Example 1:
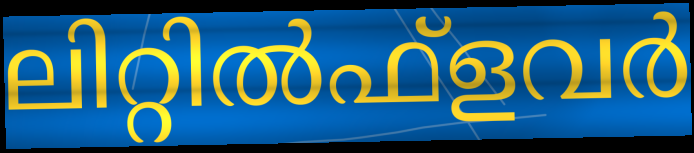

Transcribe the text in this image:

ലിറ്റിൽഫ്ളവർ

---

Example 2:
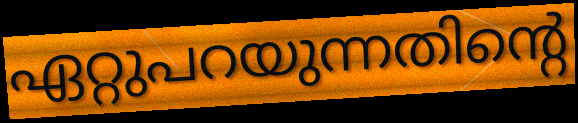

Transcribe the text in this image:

ഏറ്റുപറയുന്നതിന്റെ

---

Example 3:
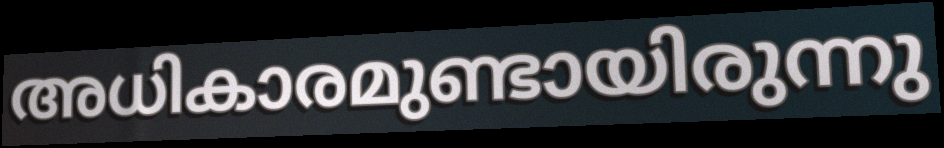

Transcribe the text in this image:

അധികാരമുണ്ടായിരുന്നു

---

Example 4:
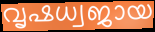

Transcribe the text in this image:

വൃഷധ്വജായ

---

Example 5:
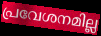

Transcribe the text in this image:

പ്രവേശനമില്ല